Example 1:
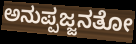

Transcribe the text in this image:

ಅನುಪ್ಪಜ್ಜನತೋ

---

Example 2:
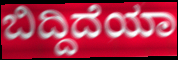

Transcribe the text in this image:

ಬಿದ್ದಿದೆಯಾ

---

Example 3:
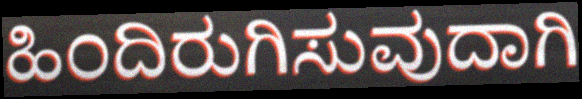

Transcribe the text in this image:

ಹಿಂದಿರುಗಿಸುವುದಾಗಿ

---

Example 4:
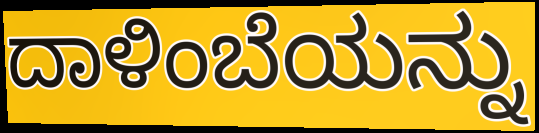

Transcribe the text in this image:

ದಾಳಿಂಬೆಯನ್ನು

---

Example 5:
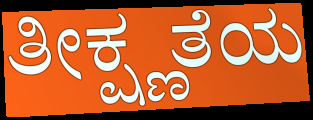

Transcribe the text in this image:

ತೀಕ್ಷ್ಣತೆಯ